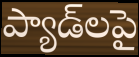
ప్యాడ్‌లపై